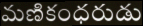
మణికంధరుడు